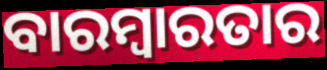
ବାରମ୍ବାରତାର